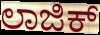
ಲಾಜಿಕ್